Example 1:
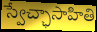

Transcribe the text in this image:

స్వేచ్ఛాసాహితి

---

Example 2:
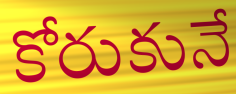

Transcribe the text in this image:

కోరుకునే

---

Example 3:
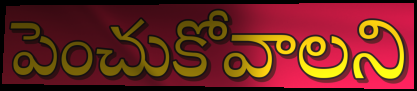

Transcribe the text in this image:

పెంచుకోవాలని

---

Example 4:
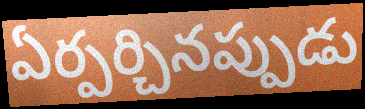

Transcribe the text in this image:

ఏర్పర్చినప్పుడు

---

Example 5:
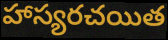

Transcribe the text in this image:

హాస్యరచయిత